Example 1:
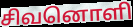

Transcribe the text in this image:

சிவனொளி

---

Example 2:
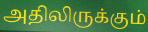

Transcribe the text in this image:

அதிலிருக்கும்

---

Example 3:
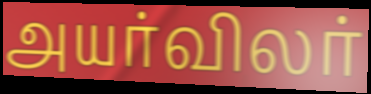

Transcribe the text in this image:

அயர்விலர்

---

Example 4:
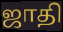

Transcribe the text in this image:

ஜாதி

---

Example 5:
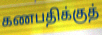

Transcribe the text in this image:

கணபதிக்குத்